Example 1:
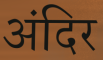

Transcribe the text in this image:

अंदिर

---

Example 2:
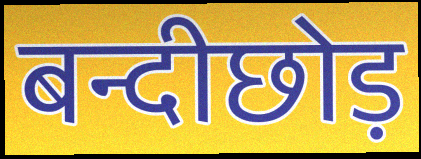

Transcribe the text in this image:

बन्दीछोड़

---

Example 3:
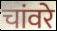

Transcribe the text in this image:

चांवरे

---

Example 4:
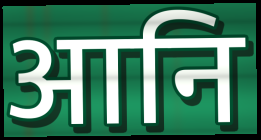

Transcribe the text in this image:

आनि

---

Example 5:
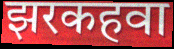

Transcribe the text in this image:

झरकहवा